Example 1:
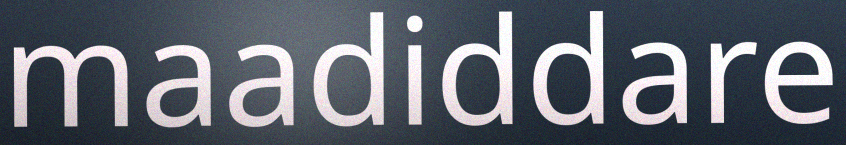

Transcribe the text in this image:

maadiddare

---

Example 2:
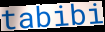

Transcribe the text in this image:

tabibi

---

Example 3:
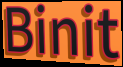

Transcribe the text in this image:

Binit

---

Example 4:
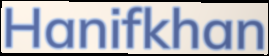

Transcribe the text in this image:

Hanifkhan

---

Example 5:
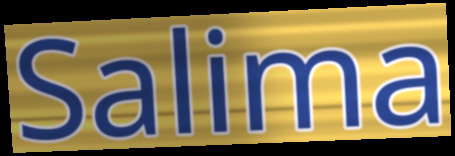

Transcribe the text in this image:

Salima